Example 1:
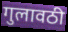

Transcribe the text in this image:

गुलावठी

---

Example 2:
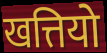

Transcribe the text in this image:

खत्तियो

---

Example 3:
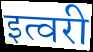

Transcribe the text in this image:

इत्वरी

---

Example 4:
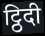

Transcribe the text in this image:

ट्ठिदी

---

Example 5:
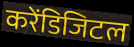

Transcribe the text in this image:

करेंडिजिटल